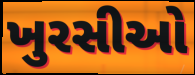
ખુરસીઓ